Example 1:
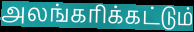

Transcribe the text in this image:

அலங்கரிக்கட்டும்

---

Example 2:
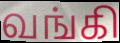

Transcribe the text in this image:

வங்கி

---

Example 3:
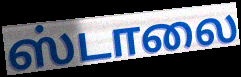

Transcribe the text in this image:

ஸ்டாலை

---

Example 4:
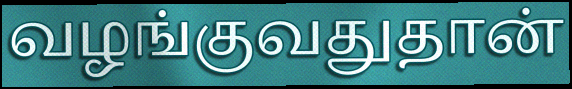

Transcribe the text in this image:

வழங்குவதுதான்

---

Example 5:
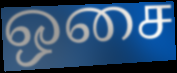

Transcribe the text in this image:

ஒசை